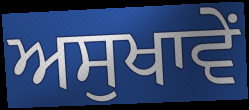
ਅਸੁਖਾਵੇਂ